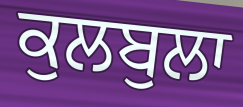
ਕੁਲਬੁਲਾ